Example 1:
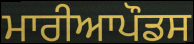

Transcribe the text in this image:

ਮਾਰੀਆਪੌਡਸ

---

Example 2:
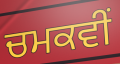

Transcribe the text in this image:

ਚਮਕਵੀਂ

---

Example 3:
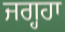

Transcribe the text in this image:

ਜਗ੍ਹਹਾ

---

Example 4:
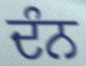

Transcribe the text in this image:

ਦੰਨ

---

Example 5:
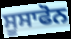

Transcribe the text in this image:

ਸੂਸਾਫੋਨ